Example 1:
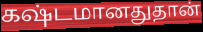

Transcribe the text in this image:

கஷ்டமானதுதான்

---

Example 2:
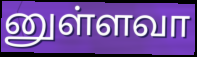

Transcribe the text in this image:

னுள்ளவா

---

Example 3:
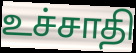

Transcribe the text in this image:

உச்சாதி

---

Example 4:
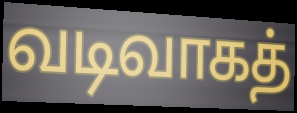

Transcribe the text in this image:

வடிவாகத்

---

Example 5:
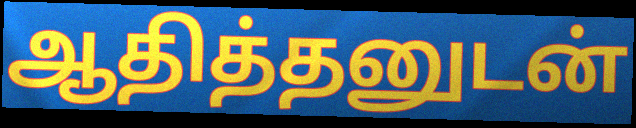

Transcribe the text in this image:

ஆதித்தனுடன்